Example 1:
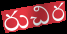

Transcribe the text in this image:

రుచిర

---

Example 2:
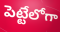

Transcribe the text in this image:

పెట్టేలోగా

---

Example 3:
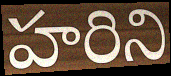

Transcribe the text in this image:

హరిని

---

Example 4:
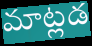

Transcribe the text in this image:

మాట్లడ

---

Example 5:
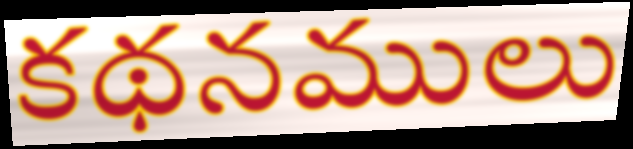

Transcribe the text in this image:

కథనములు